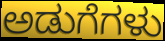
ಅಡುಗೆಗಳು